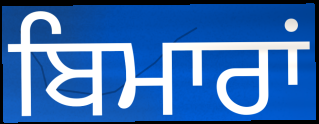
ਬਿਮਾਰਾਂ